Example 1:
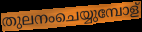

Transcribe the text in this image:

തുലനംചെയ്യുമ്പോള്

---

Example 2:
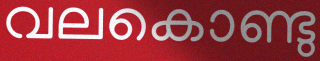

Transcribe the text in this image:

വലകൊണ്ടു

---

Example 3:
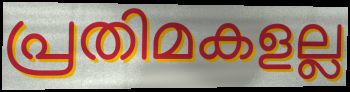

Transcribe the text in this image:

പ്രതിമകളല്ല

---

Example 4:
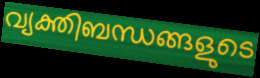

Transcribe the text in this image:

വ്യക്തിബന്ധങ്ങളുടെ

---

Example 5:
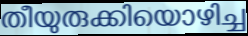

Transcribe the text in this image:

തീയുരുക്കിയൊഴിച്ച